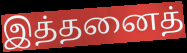
இத்தனைத்